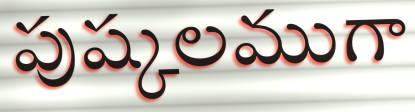
పుష్కలముగా